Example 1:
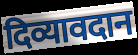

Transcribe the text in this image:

दिव्यावदान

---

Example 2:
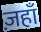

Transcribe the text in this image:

ज़हाँ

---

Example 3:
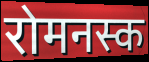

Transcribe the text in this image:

रोमनस्क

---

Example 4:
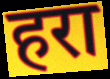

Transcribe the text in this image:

हरा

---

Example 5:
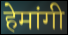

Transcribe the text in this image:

हेमांगी